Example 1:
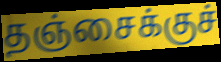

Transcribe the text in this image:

தஞ்சைக்குச்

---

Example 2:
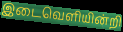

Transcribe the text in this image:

இடைவெளியின்றி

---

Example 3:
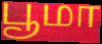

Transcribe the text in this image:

பூமா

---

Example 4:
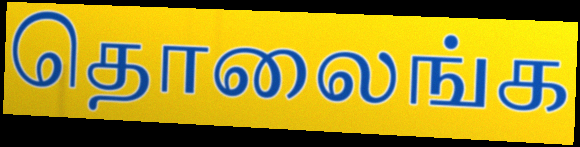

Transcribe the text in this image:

தொலைங்க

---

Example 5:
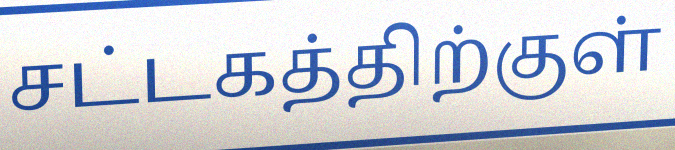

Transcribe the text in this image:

சட்டகத்திற்குள்